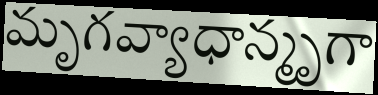
మృగవ్యాధాన్మృగా